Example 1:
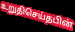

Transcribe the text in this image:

உறுதிசெய்தபின்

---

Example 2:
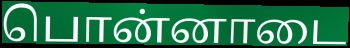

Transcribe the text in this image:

பொன்னாடை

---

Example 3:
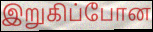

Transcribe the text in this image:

இறுகிப்போன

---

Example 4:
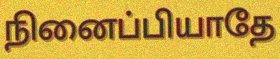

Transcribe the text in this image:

நினைப்பியாதே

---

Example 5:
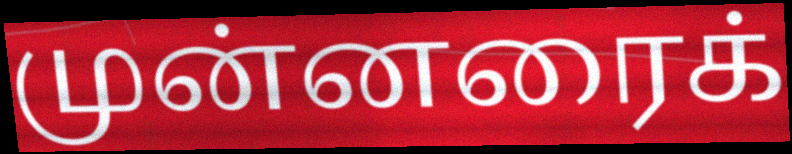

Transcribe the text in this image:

முன்னரைக்